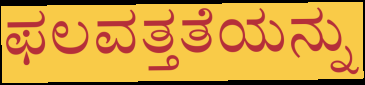
ಫಲವತ್ತತೆಯನ್ನು